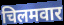
चिलमवार